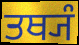
ਤਥ੍ਯੰ